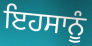
ਇਹਸਾਨੂੰ